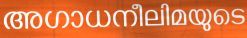
അഗാധനീലിമയുടെ